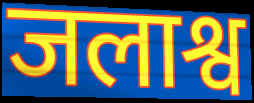
जलाश्व